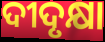
ଦୀଦୃକ୍ଷା